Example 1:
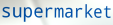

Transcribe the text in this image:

supermarket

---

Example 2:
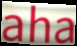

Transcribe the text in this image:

aha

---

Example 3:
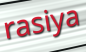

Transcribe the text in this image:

rasiya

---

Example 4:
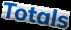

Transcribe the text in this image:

Totals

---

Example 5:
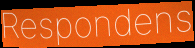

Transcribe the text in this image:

Respondens